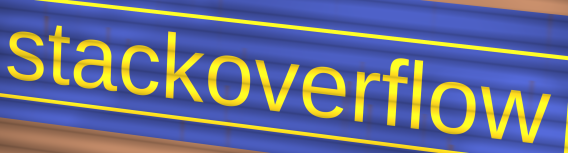
stackoverflow